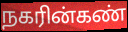
நகரின்கண்